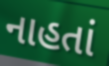
નાહતાં